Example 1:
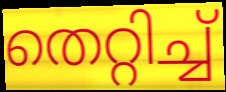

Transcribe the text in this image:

തെറ്റിച്ച്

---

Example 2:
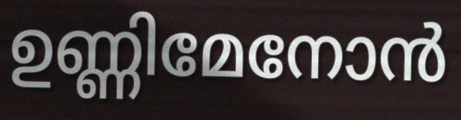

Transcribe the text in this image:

ഉണ്ണിമേനോൻ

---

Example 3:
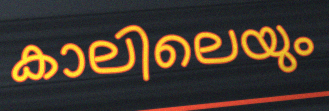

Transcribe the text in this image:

കാലിലെയും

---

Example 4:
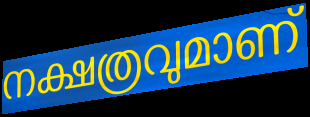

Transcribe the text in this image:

നക്ഷത്രവുമാണ്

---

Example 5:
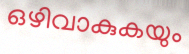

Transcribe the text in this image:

ഒഴിവാകുകയും